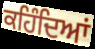
ਕਹਿੰਦਿਆਂ